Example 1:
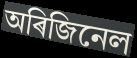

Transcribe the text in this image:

অৰিজিনেল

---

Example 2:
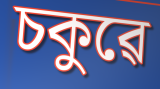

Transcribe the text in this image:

চকুৱে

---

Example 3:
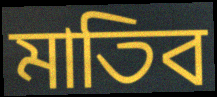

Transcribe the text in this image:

মাতিব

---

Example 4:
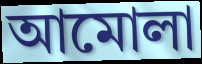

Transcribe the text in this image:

আমোলা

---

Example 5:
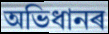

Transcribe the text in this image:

অভিধানৰ